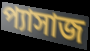
প্যাসাজ